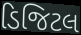
ડિજિટલ